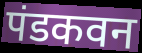
पंडकवन